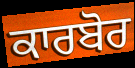
ਕਾਰਬੋਰ